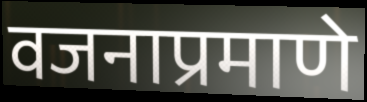
वजनाप्रमाणे